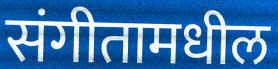
संगीतामधील